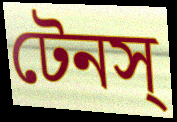
টেনস্